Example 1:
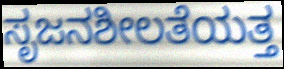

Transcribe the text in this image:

ಸೃಜನಶೀಲತೆಯತ್ತ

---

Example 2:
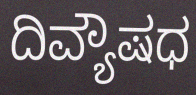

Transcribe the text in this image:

ದಿವ್ಯೌಷಧ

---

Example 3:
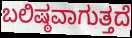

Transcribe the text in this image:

ಬಲಿಷ್ಠವಾಗುತ್ತದೆ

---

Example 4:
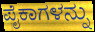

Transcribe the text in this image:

ಪೈಕಾಗಳನ್ನು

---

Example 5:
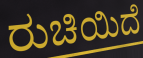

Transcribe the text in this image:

ರುಚಿಯಿದೆ